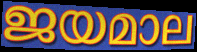
ജയമാല